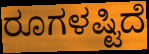
ರೂಗಳಷ್ಟಿದೆ